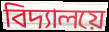
বিদ্যালয়ে